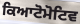
ਕਿਆਟੋਮੋਟਿਵ